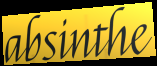
absinthe